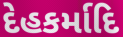
દેહકર્માદિ